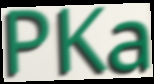
PKa